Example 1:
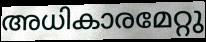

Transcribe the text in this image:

അധികാരമേറ്റു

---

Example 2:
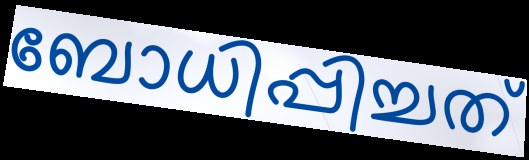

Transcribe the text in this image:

ബോധിപ്പിച്ചത്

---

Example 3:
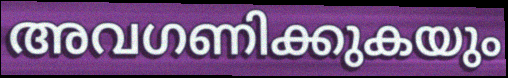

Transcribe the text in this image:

അവഗണിക്കുകയും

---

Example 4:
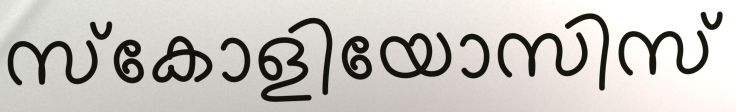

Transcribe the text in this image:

സ്കോളിയോസിസ്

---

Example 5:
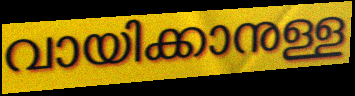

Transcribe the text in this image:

വായിക്കാനുള്ള